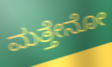
ಮತ್ತೇನೋ